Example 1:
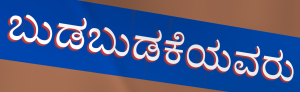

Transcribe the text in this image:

ಬುಡಬುಡಕೆಯವರು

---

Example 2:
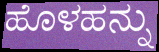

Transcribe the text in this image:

ಹೊಳಹನ್ನು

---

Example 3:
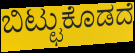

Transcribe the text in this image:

ಬಿಟ್ಟುಕೊಡದೆ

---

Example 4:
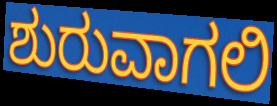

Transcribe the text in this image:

ಶುರುವಾಗಲಿ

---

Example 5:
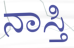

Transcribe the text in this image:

ನಾಸ್ತಿ